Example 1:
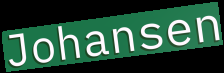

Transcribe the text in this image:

Johansen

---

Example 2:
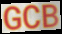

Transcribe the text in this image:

GCB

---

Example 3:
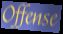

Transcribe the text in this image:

Offense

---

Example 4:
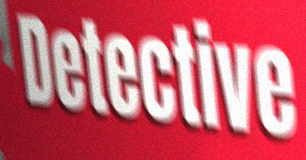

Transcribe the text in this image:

Detective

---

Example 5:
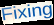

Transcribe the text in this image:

Fixing